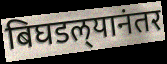
बिघडल्यानंतर